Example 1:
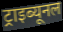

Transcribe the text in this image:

ट्राइब्यूनल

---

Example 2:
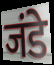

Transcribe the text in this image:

जंडे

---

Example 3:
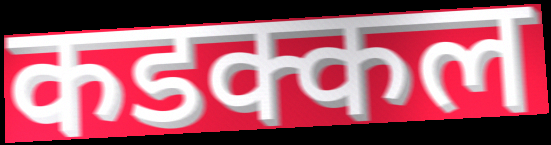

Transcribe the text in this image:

कडक्कल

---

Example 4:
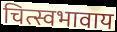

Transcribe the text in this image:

चित्स्वभावाय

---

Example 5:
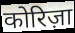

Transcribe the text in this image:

कोरिज़ा